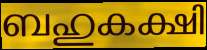
ബഹുകക്ഷി